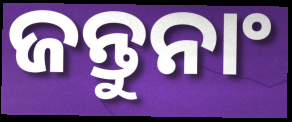
ଜନ୍ତୁନାଂ